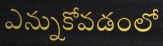
ఎన్నుకోవడంలో